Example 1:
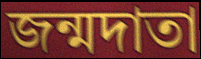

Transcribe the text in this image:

জন্মদাতা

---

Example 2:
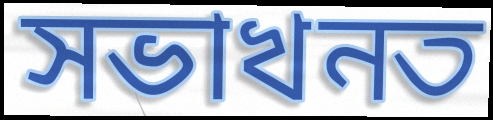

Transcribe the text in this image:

সভাখনত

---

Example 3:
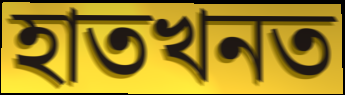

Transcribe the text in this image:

হাতখনত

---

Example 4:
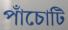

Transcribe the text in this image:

পাঁচোটি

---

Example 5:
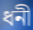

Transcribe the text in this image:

ধনী